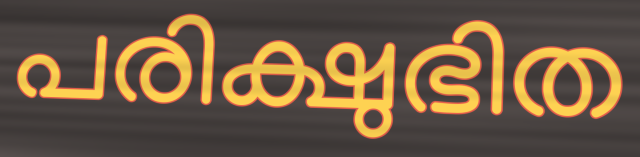
പരിക്ഷുഭിത